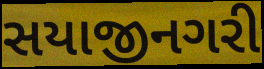
સયાજીનગરી